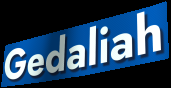
Gedaliah